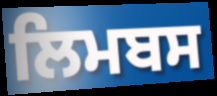
ਲਿਮਬਸ